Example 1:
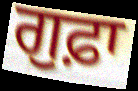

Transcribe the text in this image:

ਗੁਫ਼ਾ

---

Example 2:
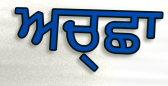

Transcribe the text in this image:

ਅਚ੍ਛਾ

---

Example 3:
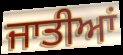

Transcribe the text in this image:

ਜਾਤੀਆਂ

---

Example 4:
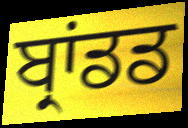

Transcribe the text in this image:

ਬ੍ਰਾਂਡਡ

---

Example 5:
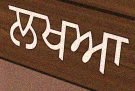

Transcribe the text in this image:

ਲਖਆ